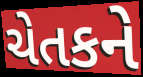
ચેતકને